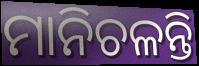
ମାନିଚଳନ୍ତି